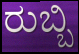
ರುಬ್ಬಿ